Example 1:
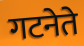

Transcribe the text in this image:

गटनेते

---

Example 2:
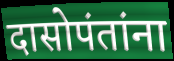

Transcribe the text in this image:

दासोपंतांना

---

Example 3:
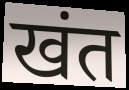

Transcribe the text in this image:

खंत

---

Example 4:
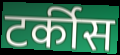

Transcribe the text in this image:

टर्कीस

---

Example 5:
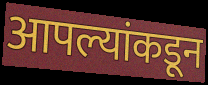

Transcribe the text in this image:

आपल्यांकडून